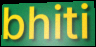
bhiti